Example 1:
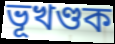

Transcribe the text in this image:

ভূখণ্ডক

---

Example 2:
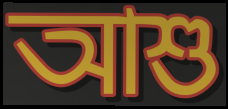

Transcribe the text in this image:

আশু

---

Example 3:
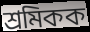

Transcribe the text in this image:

শ্ৰমিকক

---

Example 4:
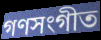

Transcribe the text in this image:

গণসংগীত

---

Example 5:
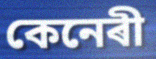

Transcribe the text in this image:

কেনেৰী